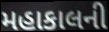
મહાકાલની